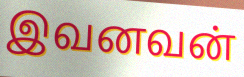
இவனவன்